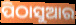
ପିଠାସୁଆର